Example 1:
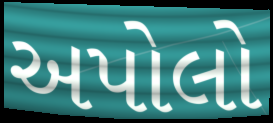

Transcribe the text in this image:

અપોલો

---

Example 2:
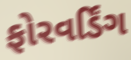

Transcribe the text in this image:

ફોરવર્ડિંગ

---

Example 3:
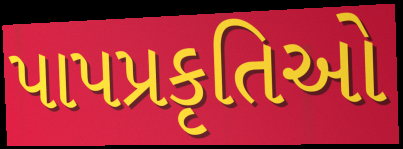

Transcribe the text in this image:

પાપપ્રકૃતિઓ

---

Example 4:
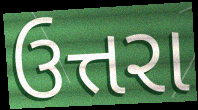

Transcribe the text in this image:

ઉત્તરા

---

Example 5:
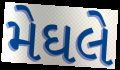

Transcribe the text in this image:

મેઘલે